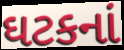
ઘટકનાં